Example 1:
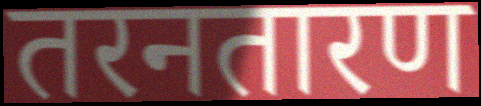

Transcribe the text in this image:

तरनतारण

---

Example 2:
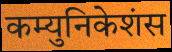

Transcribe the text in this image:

कम्‍युनिकेशंस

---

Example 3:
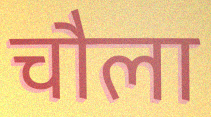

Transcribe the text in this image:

चौला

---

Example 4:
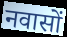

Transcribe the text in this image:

नवासों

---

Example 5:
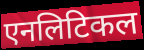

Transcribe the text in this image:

एनलिटिकल